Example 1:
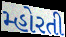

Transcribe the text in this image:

મ્હોરતી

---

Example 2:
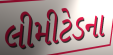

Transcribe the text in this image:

લીમીટેડના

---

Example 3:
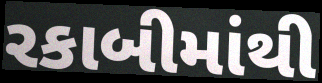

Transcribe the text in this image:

રકાબીમાંથી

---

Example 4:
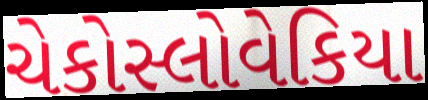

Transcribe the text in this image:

ચેકોસ્લોવેકિયા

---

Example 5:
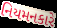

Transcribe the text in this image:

નિયમનકારે